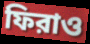
ফিরাও